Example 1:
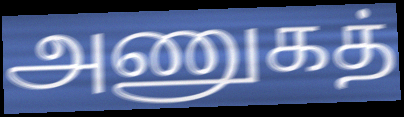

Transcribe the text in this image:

அணுகத்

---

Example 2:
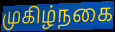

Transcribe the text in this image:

முகிழ்நகை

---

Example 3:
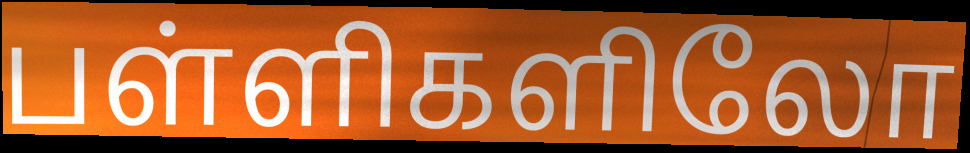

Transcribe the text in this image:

பள்ளிகளிலோ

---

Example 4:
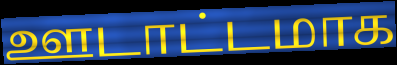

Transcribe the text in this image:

ஊடாட்டமாக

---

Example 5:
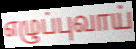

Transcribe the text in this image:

எழுப்புவாய்